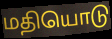
மதியொடு